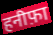
हनीफ़ा